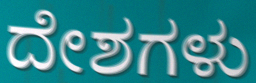
ದೇಶಗಳು